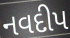
નવદીપ